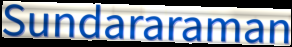
Sundararaman